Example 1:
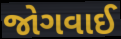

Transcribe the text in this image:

જોગવાઈ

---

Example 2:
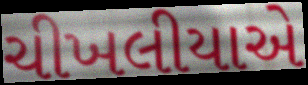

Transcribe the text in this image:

ચીખલીયાએ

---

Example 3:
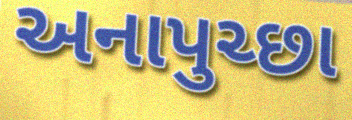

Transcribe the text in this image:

અનાપુચ્છા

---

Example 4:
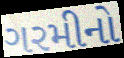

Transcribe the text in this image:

ગરમીનો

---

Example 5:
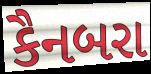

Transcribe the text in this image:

કૈનબરા